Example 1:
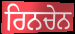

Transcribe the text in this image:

ਰਿਨਚੇਨ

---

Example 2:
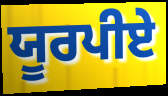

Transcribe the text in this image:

ਯੂਰਪੀਏ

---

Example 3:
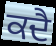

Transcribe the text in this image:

ਕਦੈ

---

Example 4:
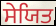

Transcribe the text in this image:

ਸੇਯਿਤ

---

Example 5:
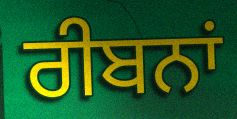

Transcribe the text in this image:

ਰੀਬਨਾਂ